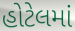
હોટેલમાં